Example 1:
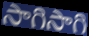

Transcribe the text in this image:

సాగిసాగి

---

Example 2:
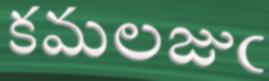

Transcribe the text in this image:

కమలజుఁ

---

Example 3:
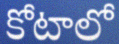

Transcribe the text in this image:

కోటాలో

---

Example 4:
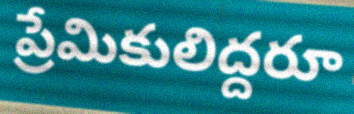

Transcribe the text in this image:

ప్రేమికులిద్దరూ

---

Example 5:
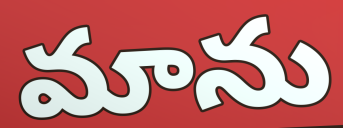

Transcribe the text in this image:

మాను